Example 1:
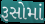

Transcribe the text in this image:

રૂસોમાં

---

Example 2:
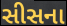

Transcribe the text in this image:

સીસના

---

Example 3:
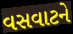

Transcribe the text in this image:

વસવાટને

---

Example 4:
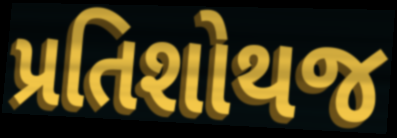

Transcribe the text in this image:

પ્રતિશોથજ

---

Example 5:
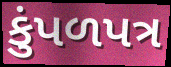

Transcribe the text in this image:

કુંપળપત્ર